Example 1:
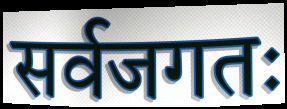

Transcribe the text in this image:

सर्वजगतः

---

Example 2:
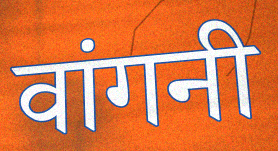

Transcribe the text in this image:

वांगनी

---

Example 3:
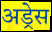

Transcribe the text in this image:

अड्रेस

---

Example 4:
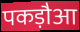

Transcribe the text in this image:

पकड़ौआ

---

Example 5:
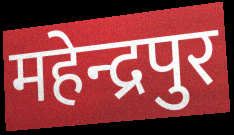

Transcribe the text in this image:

महेन्द्रपुर